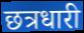
छत्रधारी